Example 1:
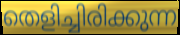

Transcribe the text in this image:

തെളിച്ചിരിക്കുന്ന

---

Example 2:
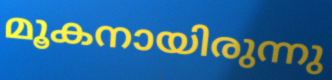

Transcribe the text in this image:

മൂകനായിരുന്നു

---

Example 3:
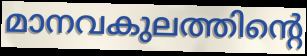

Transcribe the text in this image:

മാനവകുലത്തിന്റെ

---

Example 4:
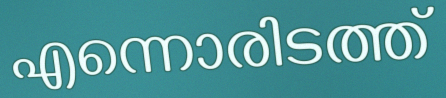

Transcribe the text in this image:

എന്നൊരിടത്ത്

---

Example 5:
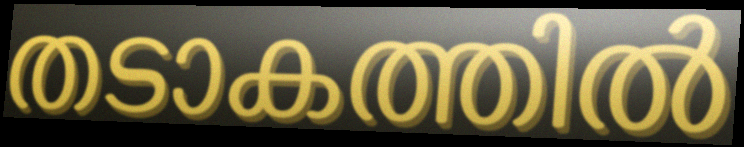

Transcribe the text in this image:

തടാകത്തിൽ